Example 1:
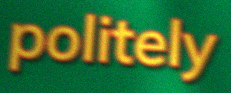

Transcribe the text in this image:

politely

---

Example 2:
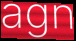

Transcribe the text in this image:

agn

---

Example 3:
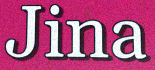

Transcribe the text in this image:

Jina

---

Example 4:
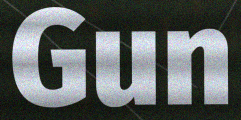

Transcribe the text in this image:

Gun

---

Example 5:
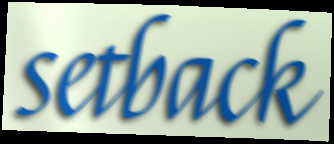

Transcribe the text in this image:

setback